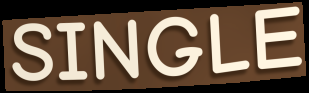
SINGLE